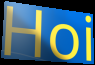
Hoi